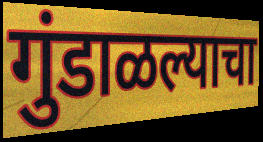
गुंडाळल्याचा